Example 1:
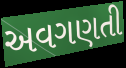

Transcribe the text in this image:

અવગણતી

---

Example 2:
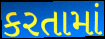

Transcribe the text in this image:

કરતામાં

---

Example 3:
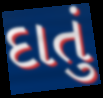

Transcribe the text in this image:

દાતું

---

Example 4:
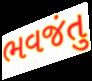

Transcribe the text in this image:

ભવજંતુ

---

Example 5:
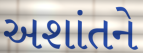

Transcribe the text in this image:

અશાંતને